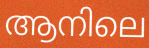
ആനിലെ